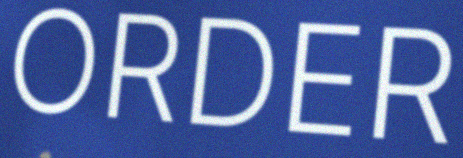
ORDER